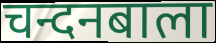
चन्दनबाला